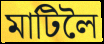
মাটিলৈ